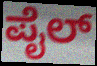
ಪೈಲ್